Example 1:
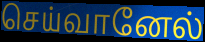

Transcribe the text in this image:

செய்வானேல்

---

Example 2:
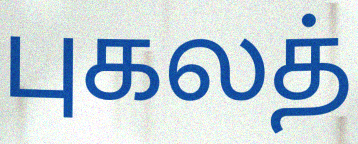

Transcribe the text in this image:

புகலத்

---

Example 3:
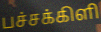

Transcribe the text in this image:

பச்சக்கிளி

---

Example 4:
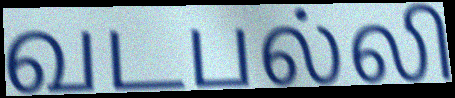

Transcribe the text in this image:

வடபல்லி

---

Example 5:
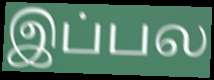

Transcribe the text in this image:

இப்பல